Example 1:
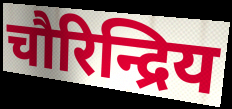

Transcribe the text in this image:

चौरिन्द्रिय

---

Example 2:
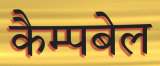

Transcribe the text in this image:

कैम्पबेल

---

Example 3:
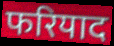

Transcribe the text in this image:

फरियाद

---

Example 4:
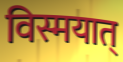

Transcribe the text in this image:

विस्मयात्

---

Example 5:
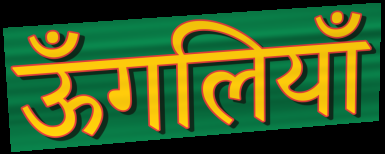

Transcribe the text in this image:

ऊँगलियाँ